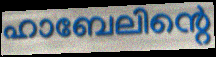
ഹാബേലിന്റെ